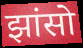
झांसो